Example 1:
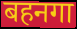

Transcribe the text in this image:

बहनगा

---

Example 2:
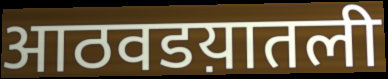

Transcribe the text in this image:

आठवडय़ातली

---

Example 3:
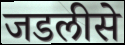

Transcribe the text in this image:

जडलीसे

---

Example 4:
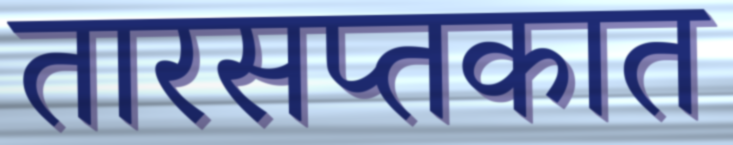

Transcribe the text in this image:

तारसप्तकात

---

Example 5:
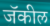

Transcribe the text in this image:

जॅकील